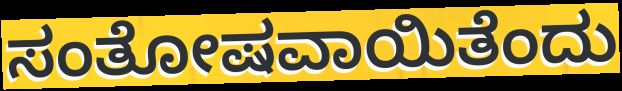
ಸಂತೋಷವಾಯಿತೆಂದು